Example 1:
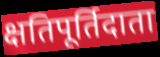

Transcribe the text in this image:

क्षतिपूर्तिदाता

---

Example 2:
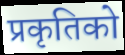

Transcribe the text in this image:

प्रकृतिको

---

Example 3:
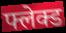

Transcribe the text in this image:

फ्लेक्ड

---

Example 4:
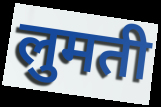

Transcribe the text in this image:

लुमती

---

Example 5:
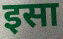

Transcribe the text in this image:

इसा